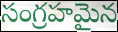
సంగ్రహమైన